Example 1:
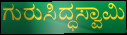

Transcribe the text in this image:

ಗುರುಸಿದ್ಧಸ್ವಾಮಿ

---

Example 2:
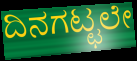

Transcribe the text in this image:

ದಿನಗಟ್ಟಲೇ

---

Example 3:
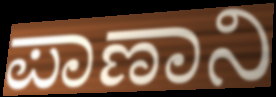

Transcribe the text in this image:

ಪಾಣಾನಿ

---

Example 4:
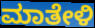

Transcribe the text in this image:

ಮಾತೇಳಿ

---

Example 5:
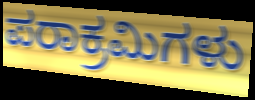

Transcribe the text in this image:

ಪರಾಕ್ರಮಿಗಳು